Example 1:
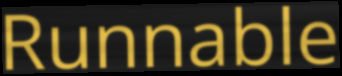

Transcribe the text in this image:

Runnable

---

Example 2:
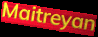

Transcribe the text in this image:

Maitreyan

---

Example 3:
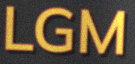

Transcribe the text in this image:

LGM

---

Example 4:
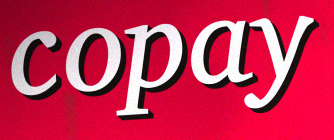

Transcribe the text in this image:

copay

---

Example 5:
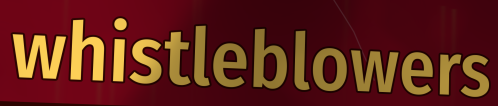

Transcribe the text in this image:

whistleblowers